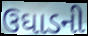
ઉઘાડની